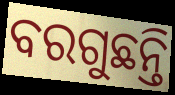
ବରଗୁଛନ୍ତି